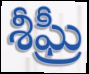
శీఘ్రీ